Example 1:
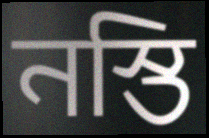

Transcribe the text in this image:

নস্তি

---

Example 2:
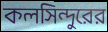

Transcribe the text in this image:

কলসিন্দুরের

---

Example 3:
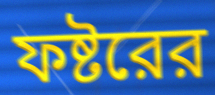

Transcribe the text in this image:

ফষ্টরের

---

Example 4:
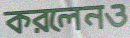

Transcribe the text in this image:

করলেনও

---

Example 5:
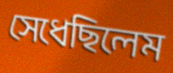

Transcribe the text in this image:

সেধেছিলেম